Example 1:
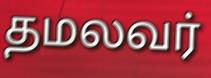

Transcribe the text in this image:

தமலவர்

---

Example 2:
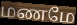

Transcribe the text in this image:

மணமே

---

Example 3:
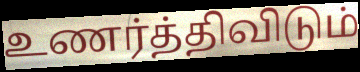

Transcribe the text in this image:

உணர்த்திவிடும்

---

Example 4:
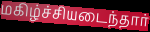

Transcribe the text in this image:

மகிழ்ச்சியடைந்தார்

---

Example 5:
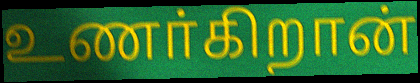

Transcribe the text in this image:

உணர்கிறான்